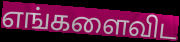
எங்களைவிட